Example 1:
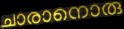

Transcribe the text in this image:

ചാരാനൊരു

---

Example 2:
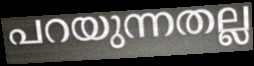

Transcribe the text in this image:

പറയുന്നതല്ല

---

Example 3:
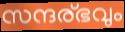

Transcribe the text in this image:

സന്ദര്ഭവും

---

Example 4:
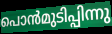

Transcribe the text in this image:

പൊൻമുടിപ്പിന്നു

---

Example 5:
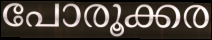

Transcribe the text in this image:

പോരൂക്കര